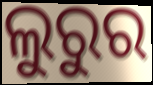
ଲୁରୁର